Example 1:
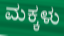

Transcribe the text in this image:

ಮಕ್ಕಳು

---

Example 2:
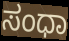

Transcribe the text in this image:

ಸಂಧಾ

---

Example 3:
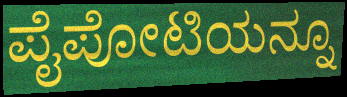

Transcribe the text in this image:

ಪೈಪೋಟಿಯನ್ನೂ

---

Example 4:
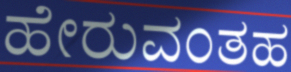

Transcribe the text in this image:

ಹೇರುವಂತಹ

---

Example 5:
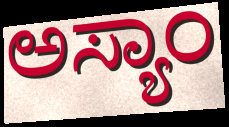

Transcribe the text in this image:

ಅಸ್ಯಾಂ